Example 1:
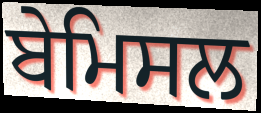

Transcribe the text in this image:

ਬੇਮਿਸਲ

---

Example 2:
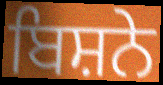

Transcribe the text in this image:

ਬਿਸ਼ਨੇ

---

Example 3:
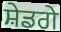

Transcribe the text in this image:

ਸ਼ੇਡਗੇ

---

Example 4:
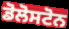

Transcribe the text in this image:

ਡੋਲੋਸਟੋਨ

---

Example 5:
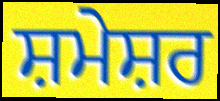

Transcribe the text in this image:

ਸ਼ਮੇਸ਼ਰ